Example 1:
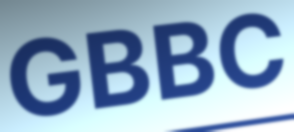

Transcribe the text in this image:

GBBC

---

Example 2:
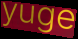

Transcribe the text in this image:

yuge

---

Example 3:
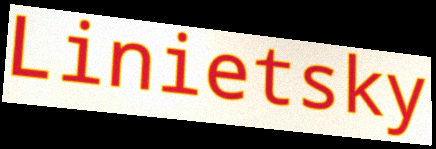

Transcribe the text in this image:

Linietsky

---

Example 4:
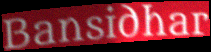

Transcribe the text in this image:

Bansidhar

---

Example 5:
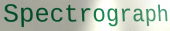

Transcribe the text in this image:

Spectrograph